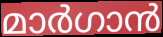
മാർഗാൻ